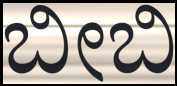
ಬೀಬಿ